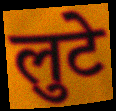
लुटे